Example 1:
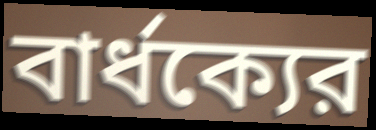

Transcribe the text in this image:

বার্ধক্যের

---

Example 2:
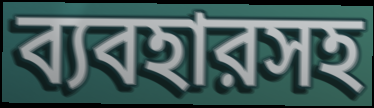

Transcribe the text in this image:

ব্যবহারসহ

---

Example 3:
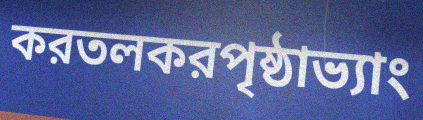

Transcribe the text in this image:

করতলকরপৃষ্ঠাভ্যাং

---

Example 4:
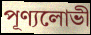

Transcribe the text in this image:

পূণ্যলোভী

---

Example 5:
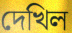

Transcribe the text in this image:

দেখিল